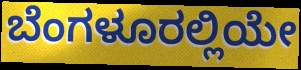
ಬೆಂಗಳೂರಲ್ಲಿಯೇ